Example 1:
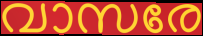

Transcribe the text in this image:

വാസരേ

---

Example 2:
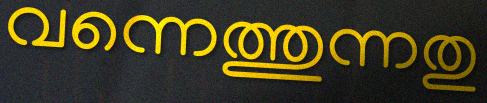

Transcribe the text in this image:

വന്നെത്തുന്നതു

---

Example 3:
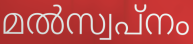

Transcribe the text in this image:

മൽസ്വപ്നം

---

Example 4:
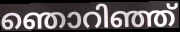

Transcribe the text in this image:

ഞൊറിഞ്ഞ്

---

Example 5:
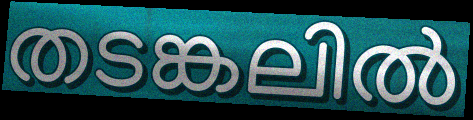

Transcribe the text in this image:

തടങ്കലിൽ